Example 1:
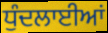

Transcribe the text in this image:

ਧੁੰਦਲਾਈਆਂ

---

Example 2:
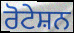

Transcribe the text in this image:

ਰੋਟੇਸ਼ਨ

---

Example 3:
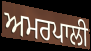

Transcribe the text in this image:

ਅਮਰਪਾਲੀ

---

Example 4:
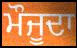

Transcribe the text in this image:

ਮੌਜੂਦਾ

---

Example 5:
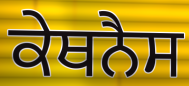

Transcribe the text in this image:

ਕੇਥਨੈਸ